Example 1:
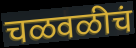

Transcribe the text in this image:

चळवळीचं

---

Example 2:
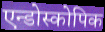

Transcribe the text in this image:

एन्डोस्कोपिक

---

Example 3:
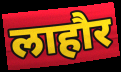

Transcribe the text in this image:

लाहौर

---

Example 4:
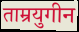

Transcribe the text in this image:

ताम्रयुगीन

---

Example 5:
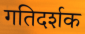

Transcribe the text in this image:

गतिदर्शक